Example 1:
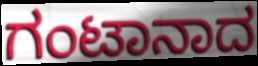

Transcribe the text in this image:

ಗಂಟಾನಾದ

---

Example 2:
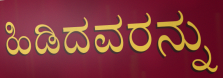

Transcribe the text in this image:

ಹಿಡಿದವರನ್ನು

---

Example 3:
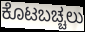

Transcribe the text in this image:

ಕೊಟಬಚ್ಚಲು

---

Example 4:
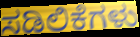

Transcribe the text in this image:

ಸಡಿಲಿಕೆಗಳು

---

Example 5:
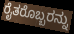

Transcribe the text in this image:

ರೈತರೊಬ್ಬರನ್ನು